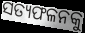
ସତ୍ୟଫଳନକୁ